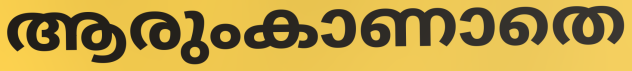
ആരുംകാണാതെ